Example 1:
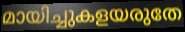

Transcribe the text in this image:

മായിച്ചുകളയരുതേ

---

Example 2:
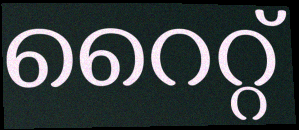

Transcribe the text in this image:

റൈറ്റ്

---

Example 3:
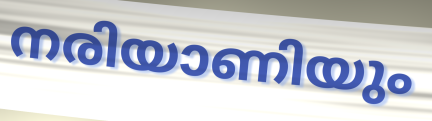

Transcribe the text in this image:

നരിയാണിയും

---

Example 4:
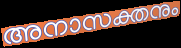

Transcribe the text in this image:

അനാസക്തനും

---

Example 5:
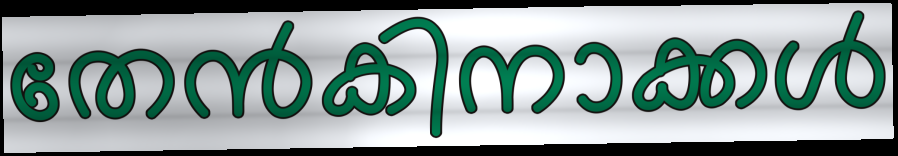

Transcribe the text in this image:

തേൻകിനാക്കൾ